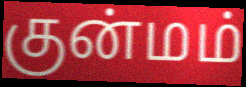
குன்மம்